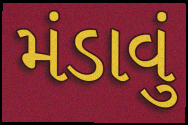
મંડાવું